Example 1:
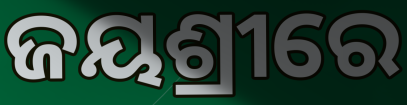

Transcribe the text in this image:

ଜୟଶ୍ରୀରେ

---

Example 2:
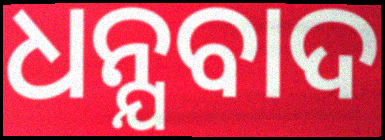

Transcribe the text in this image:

ଧନ୍ଯବାଦ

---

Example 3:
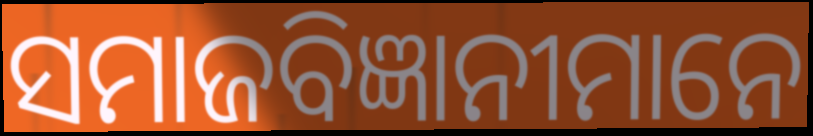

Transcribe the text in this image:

ସମାଜବିଜ୍ଞାନୀମାନେ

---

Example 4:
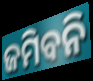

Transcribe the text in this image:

ଜମିବନି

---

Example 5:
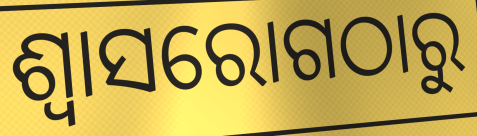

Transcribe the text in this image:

ଶ୍ୱାସରୋଗଠାରୁ